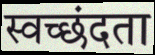
स्वच्छंदता